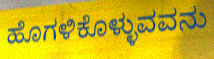
ಹೊಗಳಿಕೊಳ್ಳುವವನು